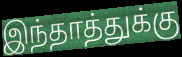
இந்தாத்துக்கு